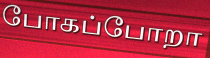
போகப்போறா